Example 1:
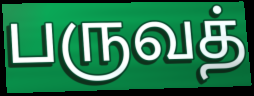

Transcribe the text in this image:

பருவத்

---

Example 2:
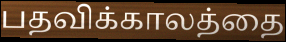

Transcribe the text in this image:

பதவிக்காலத்தை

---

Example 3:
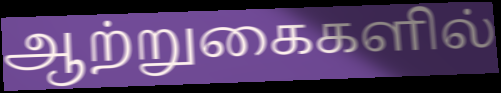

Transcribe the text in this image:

ஆற்றுகைகளில்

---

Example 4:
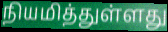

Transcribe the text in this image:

நியமித்துள்ளது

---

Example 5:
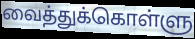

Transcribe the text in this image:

வைத்துக்கொள்ளு